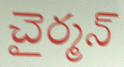
చైర్మన్